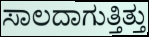
ಸಾಲದಾಗುತ್ತಿತ್ತು